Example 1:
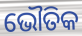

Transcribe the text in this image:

ଭୌତିକ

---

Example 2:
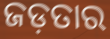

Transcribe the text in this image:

ଜଡ଼ତାର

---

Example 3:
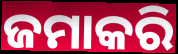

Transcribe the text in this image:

ଜମାକରି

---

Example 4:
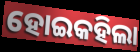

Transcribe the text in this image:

ହୋଇକହିଲା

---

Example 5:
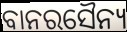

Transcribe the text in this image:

ବାନରସୈନ୍ୟ